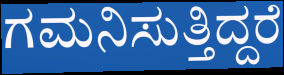
ಗಮನಿಸುತ್ತಿದ್ದರೆ